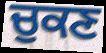
ਚੁਕਣ